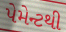
પેમેન્ટથી